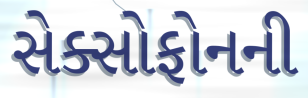
સેક્સોફોનની